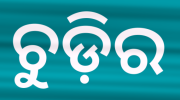
ଚୁଡ଼ିର